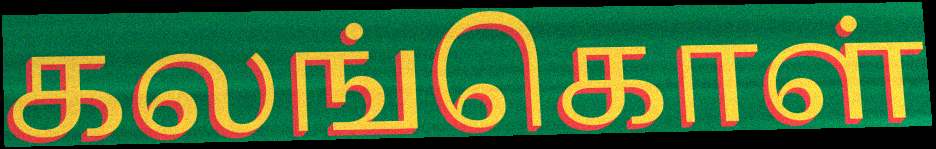
கலங்கொள்